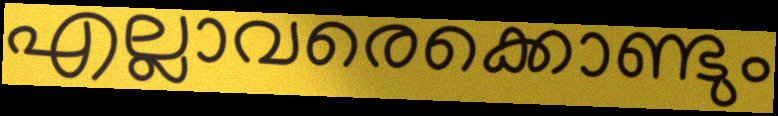
എല്ലാവരെക്കൊണ്ടും